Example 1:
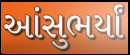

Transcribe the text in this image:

આંસુભર્યાં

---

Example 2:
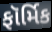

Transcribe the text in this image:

ફૉર્મિક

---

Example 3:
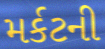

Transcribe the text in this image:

મર્કટની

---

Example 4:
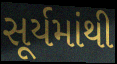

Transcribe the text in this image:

સૂર્યમાંથી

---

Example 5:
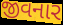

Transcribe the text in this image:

જીવનાર